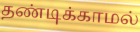
தண்டிக்காமல்